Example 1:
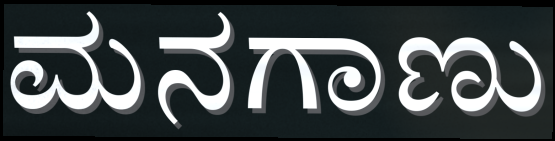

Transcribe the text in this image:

ಮನಗಾಣು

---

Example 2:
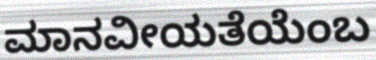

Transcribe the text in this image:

ಮಾನವೀಯತೆಯೆಂಬ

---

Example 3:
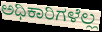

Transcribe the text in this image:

ಅಧಿಕಾರಿಗಳೆಲ್ಲ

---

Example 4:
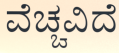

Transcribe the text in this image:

ವೆಚ್ಚವಿದೆ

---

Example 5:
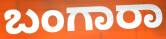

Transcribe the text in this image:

ಬಂಗಾರಾ